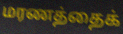
மரணத்தைக்